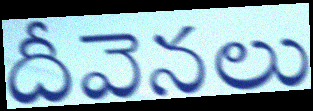
దీవెనలు